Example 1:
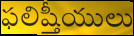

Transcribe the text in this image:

ఫలిష్తీయులు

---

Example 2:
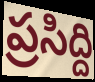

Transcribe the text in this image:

ప్రసిద్ది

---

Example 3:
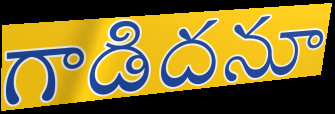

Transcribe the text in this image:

గాడిదనూ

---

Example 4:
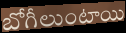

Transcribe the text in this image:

బోగీలుంటాయి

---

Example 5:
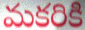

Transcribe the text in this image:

మకరికి